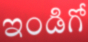
ఇండిగో